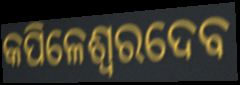
କପିଳେଶ୍ୱରଦେବ